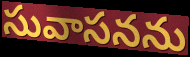
సువాసనను